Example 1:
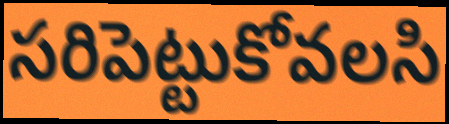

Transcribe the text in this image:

సరిపెట్టుకోవలసి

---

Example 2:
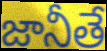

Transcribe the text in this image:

జానీతే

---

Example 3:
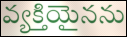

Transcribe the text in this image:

వ్యక్తియైనను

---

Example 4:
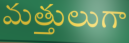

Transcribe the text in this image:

మత్తులుగా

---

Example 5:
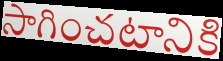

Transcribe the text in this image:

సాగించటానికి